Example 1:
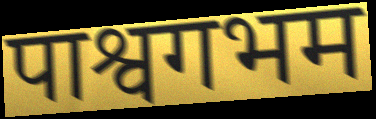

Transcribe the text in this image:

पाश्वगभम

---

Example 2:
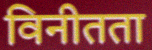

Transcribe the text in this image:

विनीतता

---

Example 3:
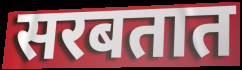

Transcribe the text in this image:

सरबतात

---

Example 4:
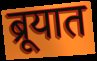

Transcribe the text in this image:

ब्रूयात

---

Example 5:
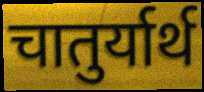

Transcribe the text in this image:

चातुर्यार्थ